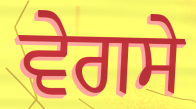
ਵੇਗਸੇ